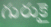
గురుకై